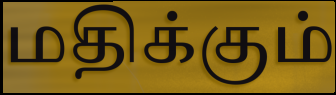
மதிக்கும்